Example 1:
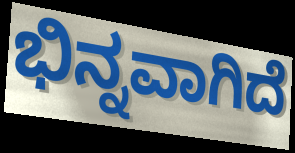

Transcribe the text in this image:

ಭಿನ್ನವಾಗಿದೆ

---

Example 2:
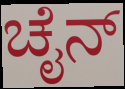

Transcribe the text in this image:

ಚೈನ್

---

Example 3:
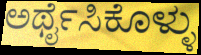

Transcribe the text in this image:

ಅರ್ಥೈಸಿಕೊಳ್ಳು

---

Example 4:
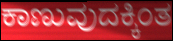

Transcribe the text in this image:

ಕಾಣುವುದಕ್ಕಿಂತ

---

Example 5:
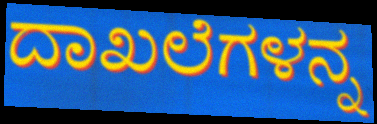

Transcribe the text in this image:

ದಾಖಲೆಗಳನ್ನ